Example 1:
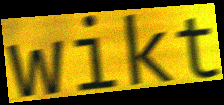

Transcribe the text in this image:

wikt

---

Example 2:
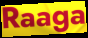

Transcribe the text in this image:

Raaga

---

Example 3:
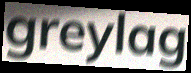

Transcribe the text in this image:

greylag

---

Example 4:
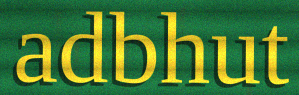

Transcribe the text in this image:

adbhut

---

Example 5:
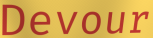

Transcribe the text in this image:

Devour